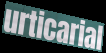
urticarial